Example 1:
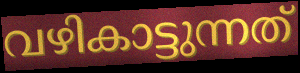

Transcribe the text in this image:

വഴികാട്ടുന്നത്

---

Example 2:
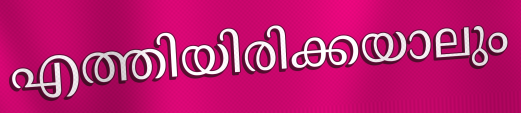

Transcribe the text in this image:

എത്തിയിരിക്കയാലും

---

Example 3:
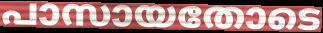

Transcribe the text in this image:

പാസായതോടെ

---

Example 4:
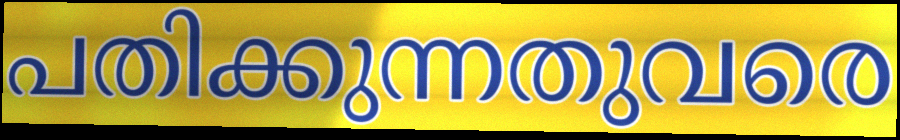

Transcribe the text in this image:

പതിക്കുന്നതുവരെ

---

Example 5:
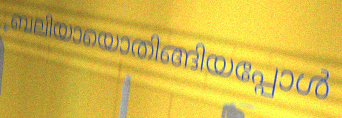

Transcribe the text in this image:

ബലിയായൊതിങ്ങിയപ്പോൾ